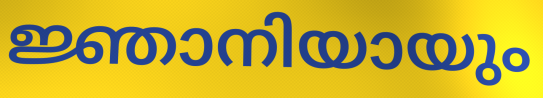
ജ്ഞാനിയായും